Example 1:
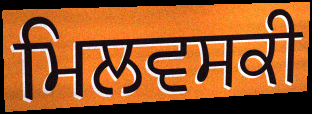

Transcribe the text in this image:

ਮਿਲਵਸਕੀ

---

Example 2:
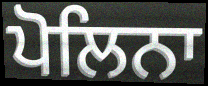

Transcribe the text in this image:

ਪੋਲਿਨਾ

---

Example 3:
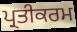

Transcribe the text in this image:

ਪ੍ਰਤੀਕਰਮ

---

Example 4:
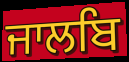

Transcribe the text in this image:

ਜਾਲਬਿ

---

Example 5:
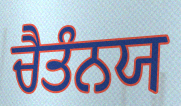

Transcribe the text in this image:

ਚੈਤੰਨਯ